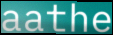
aathe